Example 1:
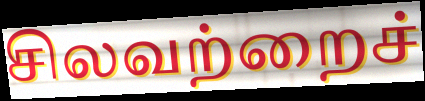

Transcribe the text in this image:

சிலவற்றைச்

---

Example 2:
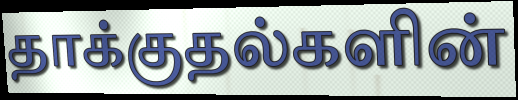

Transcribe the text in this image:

தாக்குதல்களின்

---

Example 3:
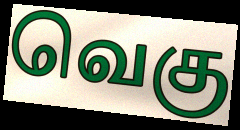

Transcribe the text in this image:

வெகு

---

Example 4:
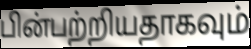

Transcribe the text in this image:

பின்பற்றியதாகவும்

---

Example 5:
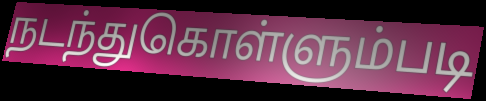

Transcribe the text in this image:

நடந்துகொள்ளும்படி